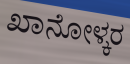
ಖಾನೋಳ್ಕರ